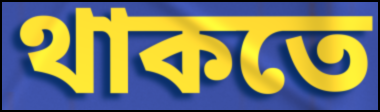
থাকতে